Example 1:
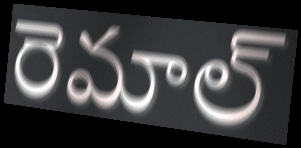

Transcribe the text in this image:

రెమాల్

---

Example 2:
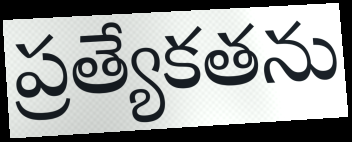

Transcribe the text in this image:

ప్రత్యేకతను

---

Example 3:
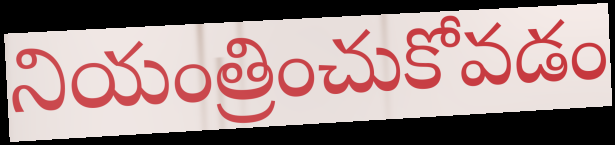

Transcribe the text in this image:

నియంత్రించుకోవడం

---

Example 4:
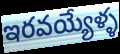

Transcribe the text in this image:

ఇరవయ్యేళ్ళ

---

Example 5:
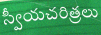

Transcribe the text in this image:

స్వీయచరిత్రలు